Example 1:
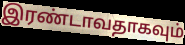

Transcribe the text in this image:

இரண்டாவதாகவும்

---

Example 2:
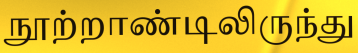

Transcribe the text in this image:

நூற்றாண்டிலிருந்து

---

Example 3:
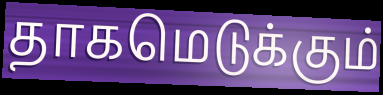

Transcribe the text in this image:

தாகமெடுக்கும்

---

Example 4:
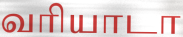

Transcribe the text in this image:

வரியாடா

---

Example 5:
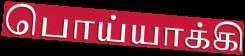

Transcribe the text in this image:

பொய்யாக்கி